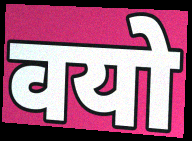
वयो